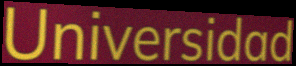
Universidad